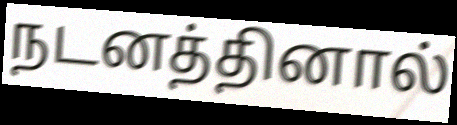
நடனத்தினால்